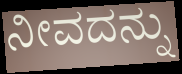
ನೀವದನ್ನು